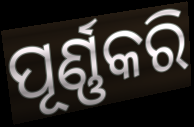
ପୂର୍ଣ୍ଣକରି